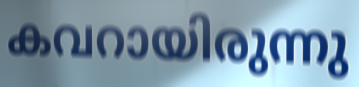
കവറായിരുന്നു